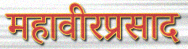
महावीरप्रसाद